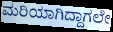
ಮರಿಯಾಗಿದ್ದಾಗಲೇ